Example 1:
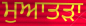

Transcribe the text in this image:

ਮੁਆਤੜਾ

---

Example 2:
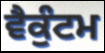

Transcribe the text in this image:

ਵੈਕੁੰਟਮ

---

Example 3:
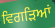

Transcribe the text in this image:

ਵਿਗੜਿਆਂ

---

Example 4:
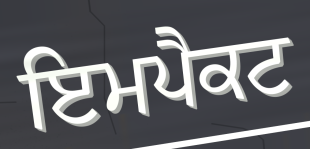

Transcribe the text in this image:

ਇਮਪੈਕਟ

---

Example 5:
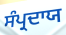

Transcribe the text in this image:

ਸੰਪ੍ਰਦਾਯ